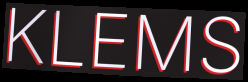
KLEMS